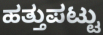
ಹತ್ತುಪಟ್ಟು